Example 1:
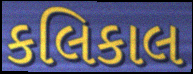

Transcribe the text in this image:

કલિકાલ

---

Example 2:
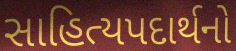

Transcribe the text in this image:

સાહિત્યપદાર્થનો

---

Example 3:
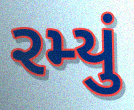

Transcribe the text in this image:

રમ્યું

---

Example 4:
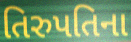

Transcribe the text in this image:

તિરુપતિના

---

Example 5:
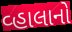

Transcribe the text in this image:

વ્હાલાનો